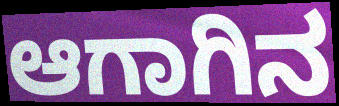
ಆಗಾಗಿನ